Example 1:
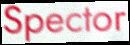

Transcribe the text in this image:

Spector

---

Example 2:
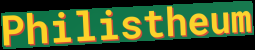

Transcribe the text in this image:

Philistheum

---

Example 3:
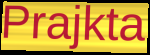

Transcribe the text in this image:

Prajkta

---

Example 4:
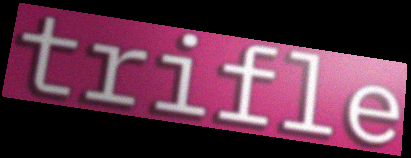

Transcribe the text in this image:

trifle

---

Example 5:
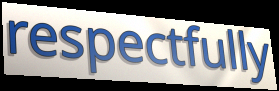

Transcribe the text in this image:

respectfully